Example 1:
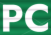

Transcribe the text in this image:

PC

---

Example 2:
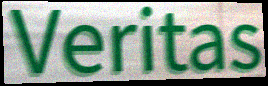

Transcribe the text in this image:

Veritas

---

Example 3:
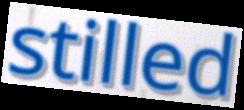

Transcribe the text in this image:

stilled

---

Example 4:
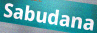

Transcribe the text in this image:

Sabudana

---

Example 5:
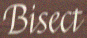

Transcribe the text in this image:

Bisect